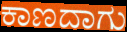
ಕಾಣದಾಗು